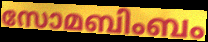
സോമബിംബം